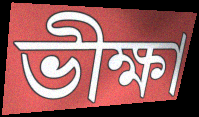
ভীক্ষা